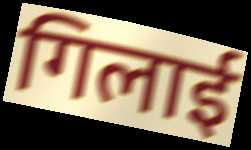
गिलाई